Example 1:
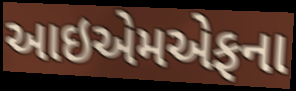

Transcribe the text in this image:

આઇએમએફના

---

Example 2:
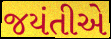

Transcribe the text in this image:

જયંતીએ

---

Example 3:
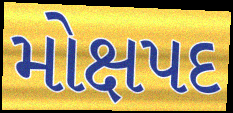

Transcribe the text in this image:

મોક્ષપદ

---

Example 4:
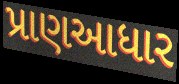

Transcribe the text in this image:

પ્રાણઆધાર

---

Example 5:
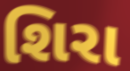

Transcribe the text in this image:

શિરા